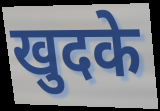
खुदके